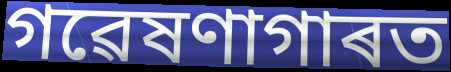
গৱেষণাগাৰত